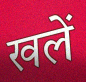
खलें